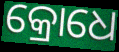
କ୍ରୋଧେ